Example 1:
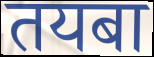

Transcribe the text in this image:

तयबा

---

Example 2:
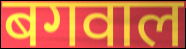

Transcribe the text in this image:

बगवाल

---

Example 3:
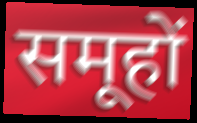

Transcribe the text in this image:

समूहों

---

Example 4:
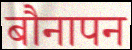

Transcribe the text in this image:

बौनापन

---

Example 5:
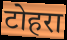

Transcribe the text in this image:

टोहरा